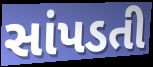
સાંપડતી